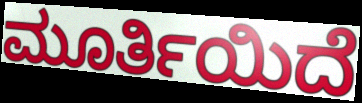
ಮೂರ್ತಿಯಿದೆ